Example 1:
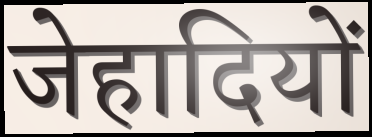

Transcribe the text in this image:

जेहादियों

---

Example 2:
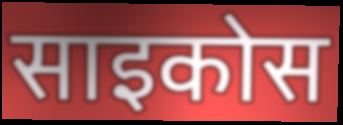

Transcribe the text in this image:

साइकोस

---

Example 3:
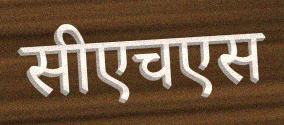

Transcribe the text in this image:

सीएचएस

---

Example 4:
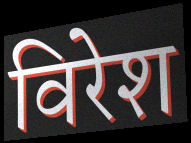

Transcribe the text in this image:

विरेश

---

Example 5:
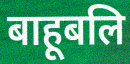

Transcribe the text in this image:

बाहूबलि